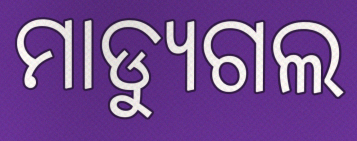
ମାଡ୍ୟୁଗଲ